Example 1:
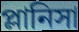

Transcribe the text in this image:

প্লানিসা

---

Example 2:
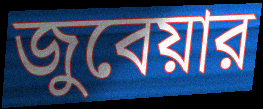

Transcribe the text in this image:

জুবেয়ার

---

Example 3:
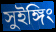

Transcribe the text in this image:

সুইঙ্গিং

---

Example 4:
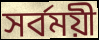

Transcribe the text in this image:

সর্বময়ী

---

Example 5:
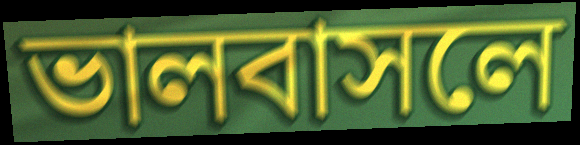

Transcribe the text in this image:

ভালবাসলে